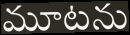
మూటను